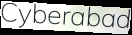
Cyberabad